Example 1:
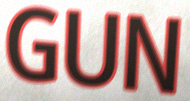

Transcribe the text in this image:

GUN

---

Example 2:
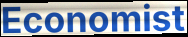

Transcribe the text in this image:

Economist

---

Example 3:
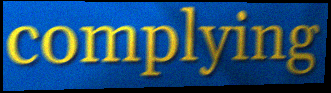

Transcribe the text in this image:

complying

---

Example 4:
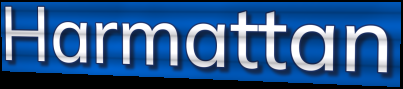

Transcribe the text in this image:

Harmattan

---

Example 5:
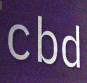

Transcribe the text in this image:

cbd